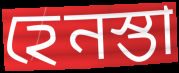
হেনস্তা